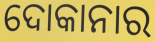
ଦୋକାନାର